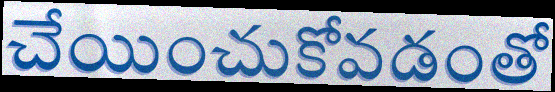
చేయించుకోవడంతో